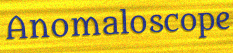
Anomaloscope